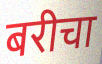
बरीचा